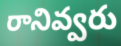
రానివ్వరు